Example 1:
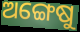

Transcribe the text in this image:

ଅଙ୍ଗେଷୁ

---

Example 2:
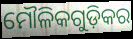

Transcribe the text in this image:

ମୌଳିକଗୁଡ଼ିକର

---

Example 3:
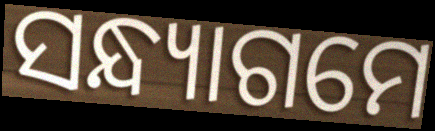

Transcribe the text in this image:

ସନ୍ଧ୍ୟାଗମେ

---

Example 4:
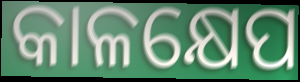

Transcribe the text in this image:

କାଳକ୍ଷେପ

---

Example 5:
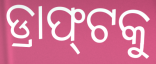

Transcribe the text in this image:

ଡ୍ରାଫ୍‌ଟକୁ